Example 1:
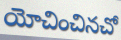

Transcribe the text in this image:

యోచించినచో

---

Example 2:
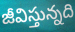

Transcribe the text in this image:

జీవిస్తున్నది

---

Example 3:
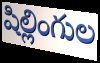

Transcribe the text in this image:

షిల్లింగుల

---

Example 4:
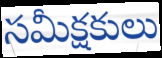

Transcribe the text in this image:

సమీక్షకులు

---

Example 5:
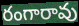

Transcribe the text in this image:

రంగారావు